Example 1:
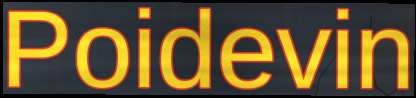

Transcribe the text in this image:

Poidevin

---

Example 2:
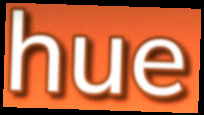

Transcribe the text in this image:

hue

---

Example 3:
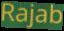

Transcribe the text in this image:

Rajab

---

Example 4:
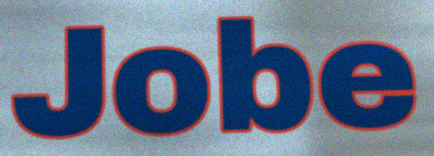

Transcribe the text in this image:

Jobe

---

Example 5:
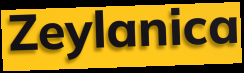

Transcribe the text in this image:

Zeylanica